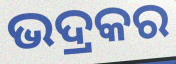
ଭଦ୍ରକର